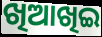
ଖିଆଖିଇ